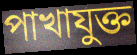
পাখাযুক্ত